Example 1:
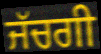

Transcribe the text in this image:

ਜੱਚਗੀ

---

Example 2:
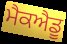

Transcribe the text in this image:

ਮੈਕਐਡੂ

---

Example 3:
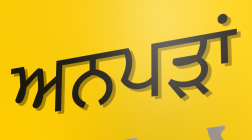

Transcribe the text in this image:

ਅਨਪੜਾਂ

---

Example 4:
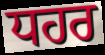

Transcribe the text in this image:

ਧਹਰ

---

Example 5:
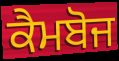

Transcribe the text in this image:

ਕੈਮਬੋਜ